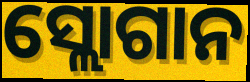
ସ୍ଲୋଗାନ